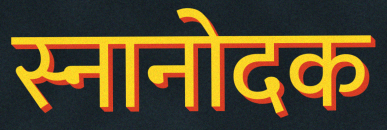
स्नानोदक